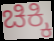
ಚಿಕ್ಕಿ